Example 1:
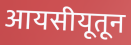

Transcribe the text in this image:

आयसीयूतून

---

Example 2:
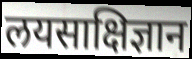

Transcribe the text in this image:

लयसाक्षिज्ञान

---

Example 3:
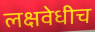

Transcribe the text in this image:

लक्षवेधीच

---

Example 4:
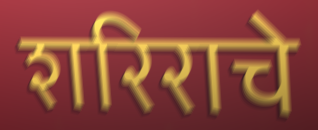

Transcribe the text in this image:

शरिराचे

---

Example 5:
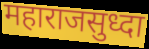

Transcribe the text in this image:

महाराजसुध्दा